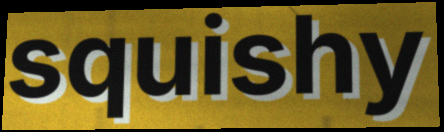
squishy